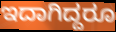
ಇದಾಗಿದ್ದರೂ